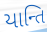
યાન્તિ